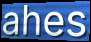
ahes